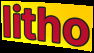
litho